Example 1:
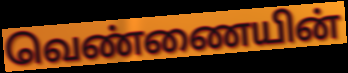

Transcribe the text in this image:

வெண்ணையின்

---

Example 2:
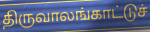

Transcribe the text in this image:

திருவாலங்காட்டுச்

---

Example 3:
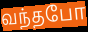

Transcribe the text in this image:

வந்தபோ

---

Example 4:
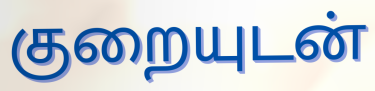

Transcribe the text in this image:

குறையுடன்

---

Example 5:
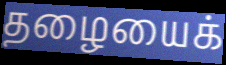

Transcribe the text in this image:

தழையைக்